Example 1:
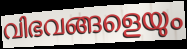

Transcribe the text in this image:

വിഭവങ്ങളെയും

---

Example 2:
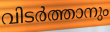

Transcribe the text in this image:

വിടർത്താനും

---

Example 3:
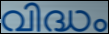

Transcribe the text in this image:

വിദ്ധം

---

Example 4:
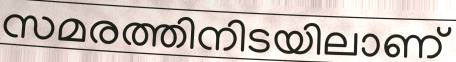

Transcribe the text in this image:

സമരത്തിനിടയിലാണ്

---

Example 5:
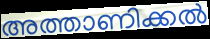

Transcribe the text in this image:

അത്താണിക്കൽ